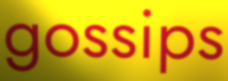
gossips